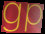
gp